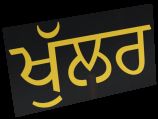
ਖੁੱਲਰ